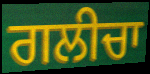
ਗਲੀਚਾ